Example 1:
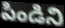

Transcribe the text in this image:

పిండిని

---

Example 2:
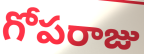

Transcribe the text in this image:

గోపరాజు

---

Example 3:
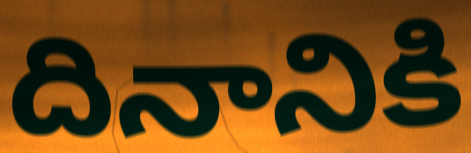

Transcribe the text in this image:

దినానికి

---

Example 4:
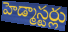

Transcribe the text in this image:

హెడ్మాస్టర్లు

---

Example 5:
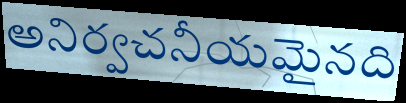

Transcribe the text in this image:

అనిర్వచనీయమైనది